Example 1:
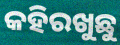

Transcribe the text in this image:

କହିରଖୁଛୁ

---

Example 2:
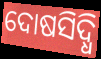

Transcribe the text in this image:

ଦୋଷସିଦ୍ଧି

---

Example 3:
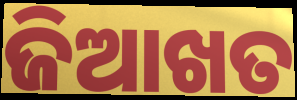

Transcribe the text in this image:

ଜିଆଖତ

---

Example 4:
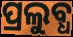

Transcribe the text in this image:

ପ୍ରଲୁବ୍ଧ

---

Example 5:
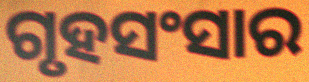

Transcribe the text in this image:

ଗୃହସଂସାର